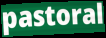
pastoral